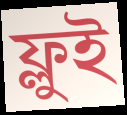
ফ্লুই